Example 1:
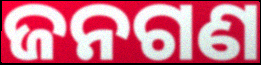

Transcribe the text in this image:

ଜନଗଣ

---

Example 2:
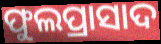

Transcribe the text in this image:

ଫୁଲପ୍ରାସାଦ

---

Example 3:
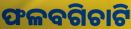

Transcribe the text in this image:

ଫଳବଗିଚାଟି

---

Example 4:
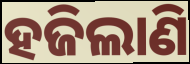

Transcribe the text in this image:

ହଜିଲାଣି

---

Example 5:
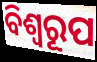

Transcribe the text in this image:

ବିଶ୍ଵରୂପ